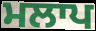
ਮਲਾਪ